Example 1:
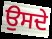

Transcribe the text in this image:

ਉਸਦੇ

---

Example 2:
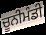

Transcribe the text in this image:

ਚੂਨੀਮੰਡੀ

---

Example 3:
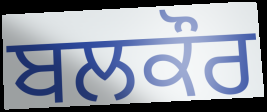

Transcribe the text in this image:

ਬਲਕੌਰ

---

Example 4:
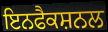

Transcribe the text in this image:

ਇਨਫੈਕਸ਼ਨਲ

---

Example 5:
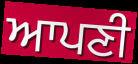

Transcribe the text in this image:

ਆਪਣੀ